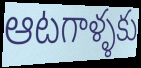
ఆటగాళ్ళకు